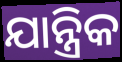
ଯାନ୍ତ୍ରିକ